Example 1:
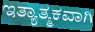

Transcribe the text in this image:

ಇತ್ಯಾತ್ಮಕವಾಗಿ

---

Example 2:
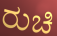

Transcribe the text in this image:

ರುಚಿ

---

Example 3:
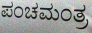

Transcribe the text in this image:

ಪಂಚಮಂತ್ರ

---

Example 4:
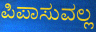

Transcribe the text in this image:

ಪಿಪಾಸುವಲ್ಲ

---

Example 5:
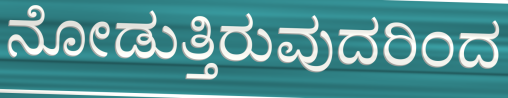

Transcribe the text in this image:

ನೋಡುತ್ತಿರುವುದರಿಂದ